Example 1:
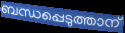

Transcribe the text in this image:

ബന്ധപ്പെടുത്താന്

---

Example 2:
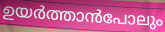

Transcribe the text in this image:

ഉയർത്താൻപോലും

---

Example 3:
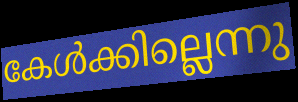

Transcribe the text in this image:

കേൾക്കില്ലെന്നു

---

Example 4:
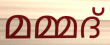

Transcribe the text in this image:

മമ്മദ്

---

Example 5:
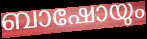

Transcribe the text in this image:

ബാഷോയും